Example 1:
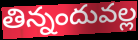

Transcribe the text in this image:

తిన్నందువల్ల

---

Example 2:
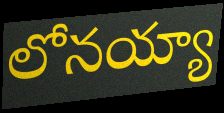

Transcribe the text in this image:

లోనయ్యా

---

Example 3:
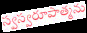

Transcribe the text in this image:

స్వస్వరూపాత్మను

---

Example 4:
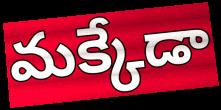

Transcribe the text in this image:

మక్కేడా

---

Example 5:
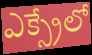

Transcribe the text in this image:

ఎక్స్రేలో